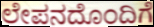
ಲೇಪನದೊಂದಿಗೆ